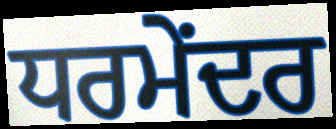
ਧਰਮੇਂਦਰ